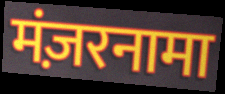
मंज़रनामा